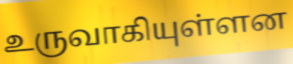
உருவாகியுள்ளன